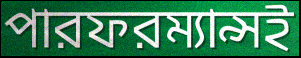
পারফরম্যান্সই